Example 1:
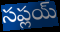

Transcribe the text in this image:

సప్లయ్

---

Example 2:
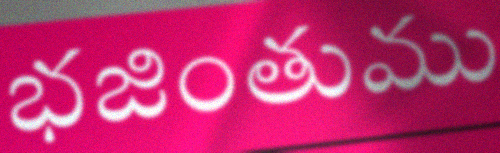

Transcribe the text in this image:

భజింతుము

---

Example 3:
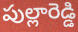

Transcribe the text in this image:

పుల్లారెడ్డి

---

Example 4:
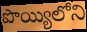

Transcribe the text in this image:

పొయ్యిలోని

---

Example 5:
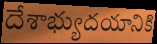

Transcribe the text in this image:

దేశాభ్యుదయానికి